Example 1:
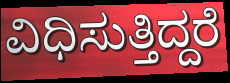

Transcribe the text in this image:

ವಿಧಿಸುತ್ತಿದ್ದರೆ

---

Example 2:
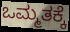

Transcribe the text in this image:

ಒಮ್ಮತಕ್ಕೆ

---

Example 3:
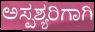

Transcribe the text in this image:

ಅಸ್ಪಶ್ಯರಿಗಾಗಿ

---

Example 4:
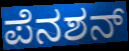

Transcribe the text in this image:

ಪೆನಶನ್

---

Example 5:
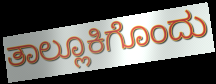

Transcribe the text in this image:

ತಾಲ್ಲೂಕಿಗೊಂದು